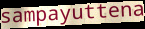
sampayuttena